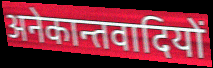
अनेकान्तवादियों